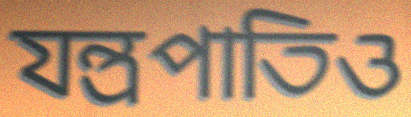
যন্ত্রপাতিও